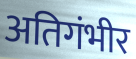
अतिगंभीर